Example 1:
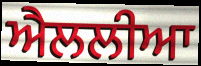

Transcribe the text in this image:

ਐਲਲੀਆ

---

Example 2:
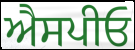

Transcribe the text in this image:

ਐਸਪੀਓ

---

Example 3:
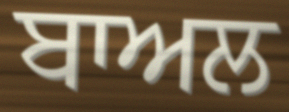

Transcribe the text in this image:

ਬਾਅਲ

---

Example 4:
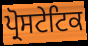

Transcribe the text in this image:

ਪ੍ਰੋਸਟੇਟਿਕ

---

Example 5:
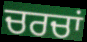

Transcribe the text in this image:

ਚਰਚਾਂ